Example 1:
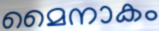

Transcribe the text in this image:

മൈനാകം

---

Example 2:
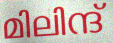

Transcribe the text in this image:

മിലിന്ദ്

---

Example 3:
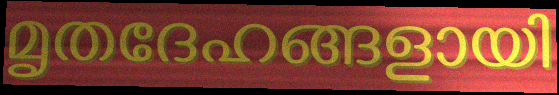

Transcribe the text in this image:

മൃതദേഹങ്ങളായി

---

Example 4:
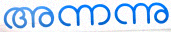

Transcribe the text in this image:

അന്നന്നു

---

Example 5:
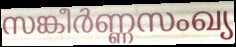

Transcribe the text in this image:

സങ്കീർണ്ണസംഖ്യ